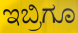
ಇಬ್ರಿಗೂ